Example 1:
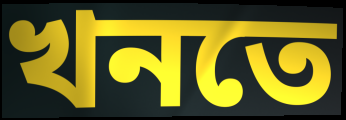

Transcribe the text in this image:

খনতে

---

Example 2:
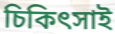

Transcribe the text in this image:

চিকিৎসাই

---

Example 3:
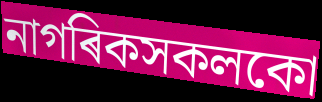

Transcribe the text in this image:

নাগৰিকসকলকো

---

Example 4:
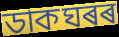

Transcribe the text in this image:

ডাকঘৰৰ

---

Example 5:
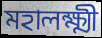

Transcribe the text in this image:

মহালক্ষ্মী